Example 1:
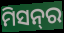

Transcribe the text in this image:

ମିସନ୍‍ର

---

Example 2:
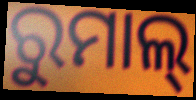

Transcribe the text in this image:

ରୁମାଲ୍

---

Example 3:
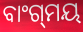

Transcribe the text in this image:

ବାଂଗ୍‌ମୟ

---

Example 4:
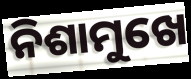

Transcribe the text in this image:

ନିଶାମୁଖେ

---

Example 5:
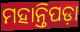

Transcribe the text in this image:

ମହାନ୍ତିପଡ଼ା